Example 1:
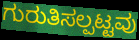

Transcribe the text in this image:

ಗುರುತಿಸಲ್ಪಟ್ಟವು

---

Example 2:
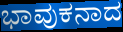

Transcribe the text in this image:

ಭಾವುಕನಾದ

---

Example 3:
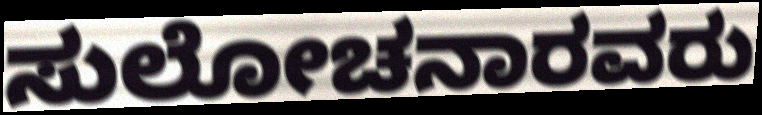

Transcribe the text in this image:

ಸುಲೋಚನಾರವರು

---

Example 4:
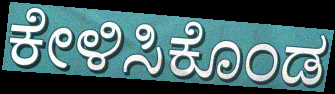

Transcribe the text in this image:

ಕೇಳಿಸಿಕೊಂಡ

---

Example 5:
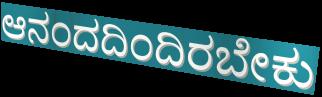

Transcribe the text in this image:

ಆನಂದದಿಂದಿರಬೇಕು